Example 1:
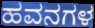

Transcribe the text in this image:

ಹವನಗಳ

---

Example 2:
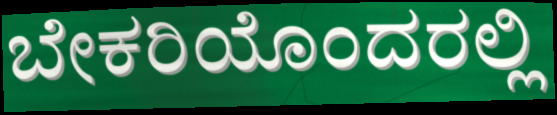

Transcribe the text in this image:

ಬೇಕರಿಯೊಂದರಲ್ಲಿ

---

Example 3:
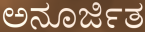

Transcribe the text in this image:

ಅನೂರ್ಜಿತ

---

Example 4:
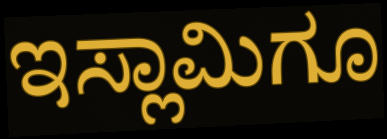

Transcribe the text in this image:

ಇಸ್ಲಾಮಿಗೂ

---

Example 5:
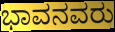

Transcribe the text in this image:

ಭಾವನವರು